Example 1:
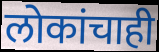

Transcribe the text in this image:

लोकांचाही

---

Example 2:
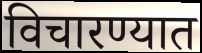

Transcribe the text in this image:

विचारण्यात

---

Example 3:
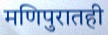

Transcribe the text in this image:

मणिपुरातही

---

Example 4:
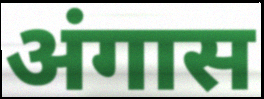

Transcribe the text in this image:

अंगास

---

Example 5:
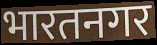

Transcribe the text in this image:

भारतनगर